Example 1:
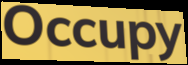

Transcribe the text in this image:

Occupy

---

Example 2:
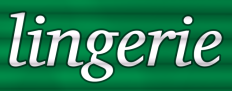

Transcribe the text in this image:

lingerie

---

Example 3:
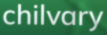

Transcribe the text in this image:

chilvary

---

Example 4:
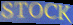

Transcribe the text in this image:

STOCK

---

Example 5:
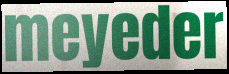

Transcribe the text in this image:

meyeder